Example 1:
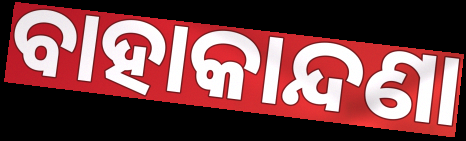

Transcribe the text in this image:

ବାହାକାନ୍ଦଣା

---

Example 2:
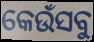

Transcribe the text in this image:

କେଉଁସବୁ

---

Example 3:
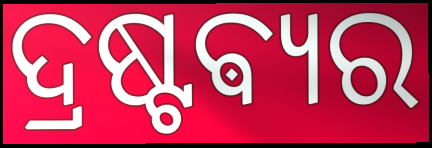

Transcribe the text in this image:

ଦ୍ରଷ୍ଟଵ୍ୟର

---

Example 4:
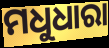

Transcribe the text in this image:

ମଧୁଧାରା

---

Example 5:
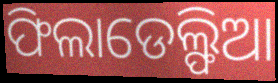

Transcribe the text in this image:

ଫିଲାଡେଲ୍ଫିଆ